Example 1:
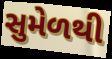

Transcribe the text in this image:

સુમેળથી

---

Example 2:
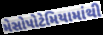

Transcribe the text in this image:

મેસોપોટેમિયામાંથી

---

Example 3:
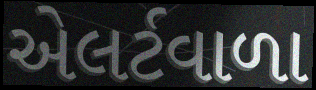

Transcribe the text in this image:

એલર્ટવાળા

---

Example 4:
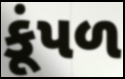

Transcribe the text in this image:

કૂંપળ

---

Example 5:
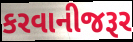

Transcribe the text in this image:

કરવાનીજરૂર